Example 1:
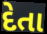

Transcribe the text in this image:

દેતા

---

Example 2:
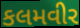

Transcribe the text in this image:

કલમવીર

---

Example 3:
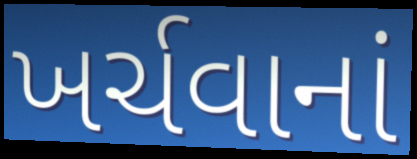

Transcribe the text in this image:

ખર્ચવાનાં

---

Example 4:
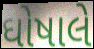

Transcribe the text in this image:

ઘોષાલે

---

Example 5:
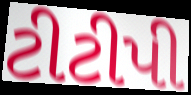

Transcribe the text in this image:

ટીટીપી